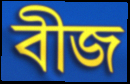
বীজ